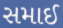
સમાઈ